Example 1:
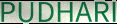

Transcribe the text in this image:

PUDHARI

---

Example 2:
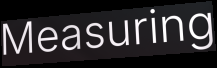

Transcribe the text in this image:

Measuring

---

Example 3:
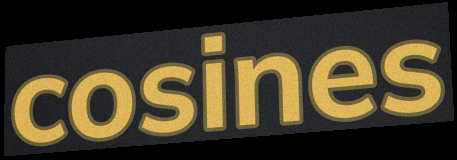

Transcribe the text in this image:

cosines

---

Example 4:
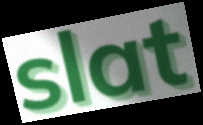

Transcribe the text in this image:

slat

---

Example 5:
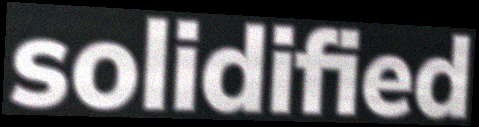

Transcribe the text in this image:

solidified